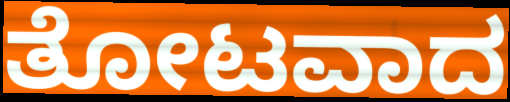
ತೋಟವಾದ